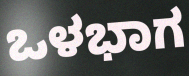
ಒಳಭಾಗ